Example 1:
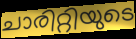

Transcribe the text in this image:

ചാരിറ്റിയുടെ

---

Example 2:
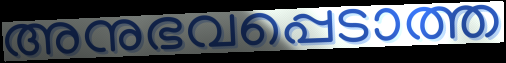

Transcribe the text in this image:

അനുഭവപ്പെടാത്ത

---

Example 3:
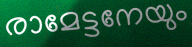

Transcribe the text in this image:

രാമേട്ടനേയും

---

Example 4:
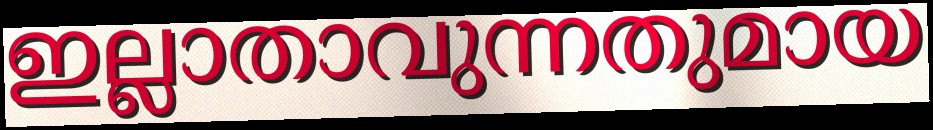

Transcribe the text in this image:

ഇല്ലാതാവുന്നതുമായ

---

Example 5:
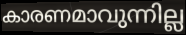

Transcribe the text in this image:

കാരണമാവുന്നില്ല